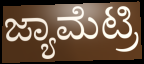
ಜ್ಯಾಮೆಟ್ರಿ